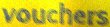
vouchers